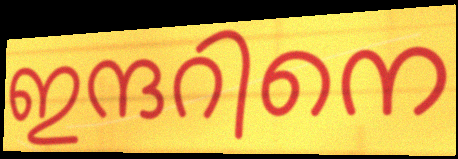
ഇന്ദറിനെ